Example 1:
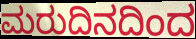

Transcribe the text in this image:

ಮರುದಿನದಿಂದ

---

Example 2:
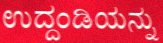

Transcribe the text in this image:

ಉದ್ದಂಡಿಯನ್ನು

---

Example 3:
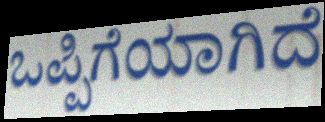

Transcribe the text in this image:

ಒಪ್ಪಿಗೆಯಾಗಿದೆ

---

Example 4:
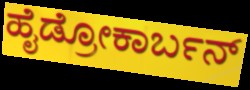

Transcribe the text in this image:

ಹೈಡ್ರೋಕಾರ್ಬನ್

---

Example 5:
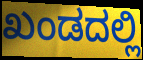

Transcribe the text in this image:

ಖಂಡದಲ್ಲಿ